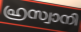
ഹ്രസ്വാനി